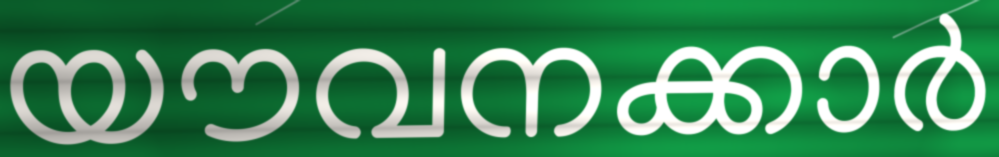
യൗവനക്കാർ